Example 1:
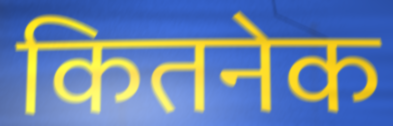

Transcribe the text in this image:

कितनेक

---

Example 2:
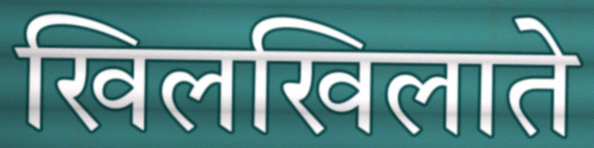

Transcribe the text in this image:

खिलखिलाते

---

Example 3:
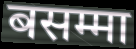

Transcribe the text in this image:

बसम्मा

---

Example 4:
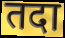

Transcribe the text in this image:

तदा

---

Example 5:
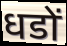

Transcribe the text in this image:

धडों